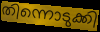
തിന്നൊടുക്കി